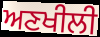
ਅਣਖੀਲੀ